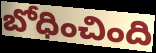
బోధించింది